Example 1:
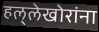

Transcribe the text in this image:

हल्लेखोरांना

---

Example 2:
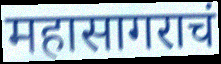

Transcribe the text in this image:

महासागराचं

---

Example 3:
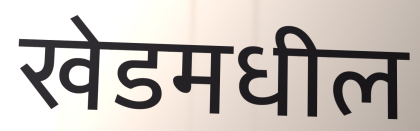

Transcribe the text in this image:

खेडमधील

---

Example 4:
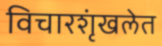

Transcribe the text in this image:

विचारशृंखलेत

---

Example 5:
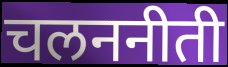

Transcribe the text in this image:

चलननीती